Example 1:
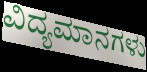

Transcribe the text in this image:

ವಿದ್ಯಮಾನಗಳು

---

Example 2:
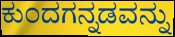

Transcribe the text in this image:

ಕುಂದಗನ್ನಡವನ್ನು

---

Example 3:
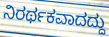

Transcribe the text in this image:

ನಿರರ್ಥಕವಾದದ್ದು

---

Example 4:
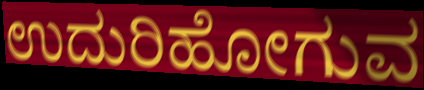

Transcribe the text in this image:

ಉದುರಿಹೋಗುವ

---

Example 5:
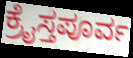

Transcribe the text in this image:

ಕ್ರೈಸ್ತಪೂರ್ವ